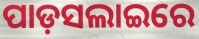
ପାଡ଼ସଲାଇରେ